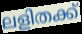
ലളിതക്ക്